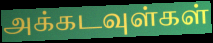
அக்கடவுள்கள்